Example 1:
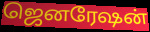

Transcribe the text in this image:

ஜெனரேஷன்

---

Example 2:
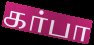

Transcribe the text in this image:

கர்பா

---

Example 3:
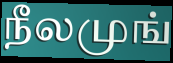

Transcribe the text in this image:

நீலமுங்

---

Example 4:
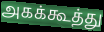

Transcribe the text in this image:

அகக்கூத்து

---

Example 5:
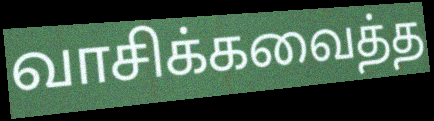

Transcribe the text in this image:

வாசிக்கவைத்த